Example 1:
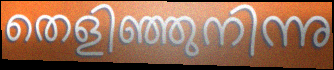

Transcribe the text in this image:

തെളിഞ്ഞുനിന്നു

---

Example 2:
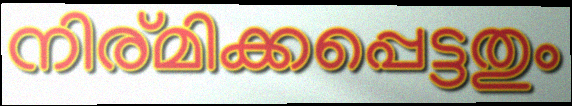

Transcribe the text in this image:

നിര്മിക്കപ്പെട്ടതും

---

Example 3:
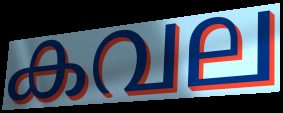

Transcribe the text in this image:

കവല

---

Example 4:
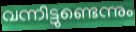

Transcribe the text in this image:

വന്നിട്ടുണ്ടെന്നും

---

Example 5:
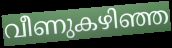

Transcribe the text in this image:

വീണുകഴിഞ്ഞ